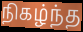
நிகழ்ந்த